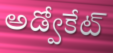
అడ్వోకేట్